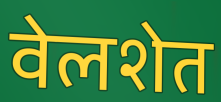
वेलशेत